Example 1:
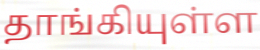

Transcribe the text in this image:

தாங்கியுள்ள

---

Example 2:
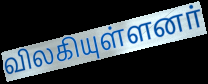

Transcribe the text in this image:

விலகியுள்ளனர்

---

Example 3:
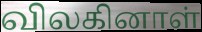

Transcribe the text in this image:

விலகினாள்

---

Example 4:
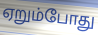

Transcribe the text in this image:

ஏறும்போது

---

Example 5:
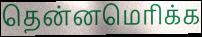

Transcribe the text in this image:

தென்னமெரிக்க